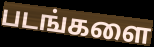
படங்களை